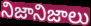
నిజానిజాలు